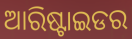
ଆରିଷ୍ଟାଇଡର